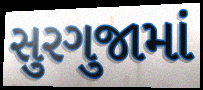
સુરગુજામાં